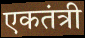
एकतंत्री